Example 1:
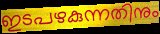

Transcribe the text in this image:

ഇടപഴകുന്നതിനും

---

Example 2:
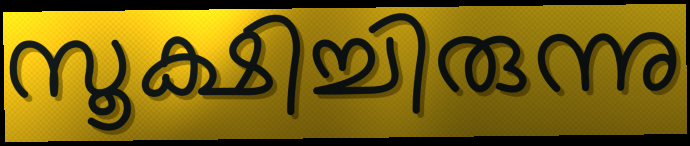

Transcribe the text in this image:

സൂക്ഷിച്ചിരുന്നു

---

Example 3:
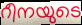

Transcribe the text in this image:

റീനയുടെ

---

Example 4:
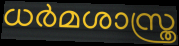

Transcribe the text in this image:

ധർമശാസ്ത്ര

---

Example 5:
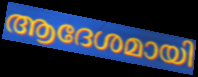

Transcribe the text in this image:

ആദേശമായി